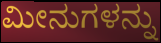
ಮೀನುಗಳನ್ನು